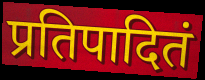
प्रतिपादितं